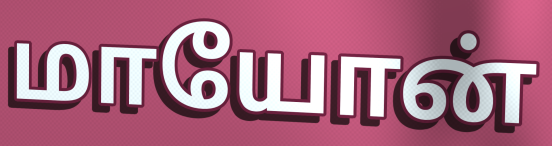
மாயோன்